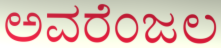
ಅವರೆಂಜಲ